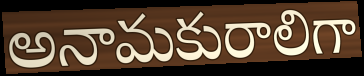
అనామకురాలిగా